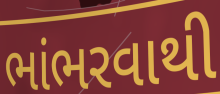
ભાંભરવાથી